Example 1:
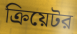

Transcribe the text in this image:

ক্রিয়েটর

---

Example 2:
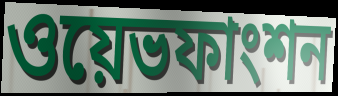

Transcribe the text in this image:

ওয়েভফাংশন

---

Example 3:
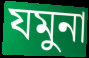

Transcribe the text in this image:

যমুনা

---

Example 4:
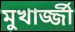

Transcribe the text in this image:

মুখার্জ্জী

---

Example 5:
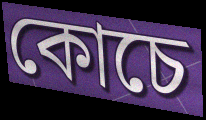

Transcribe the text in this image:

কোচে